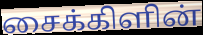
சைக்கிளின்